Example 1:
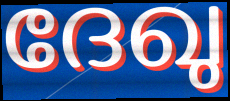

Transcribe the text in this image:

ദേഖു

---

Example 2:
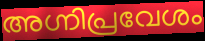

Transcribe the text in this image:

അഗ്നിപ്രവേശം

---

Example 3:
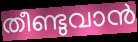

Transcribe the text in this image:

തീണ്ടുവാൻ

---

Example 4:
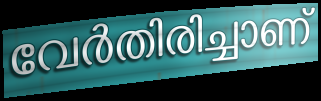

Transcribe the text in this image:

വേർതിരിച്ചാണ്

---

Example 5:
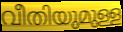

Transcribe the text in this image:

വീതിയുമുള്ള